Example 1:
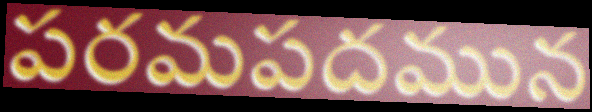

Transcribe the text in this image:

పరమపదమున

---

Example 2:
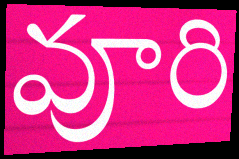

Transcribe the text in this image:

వూరి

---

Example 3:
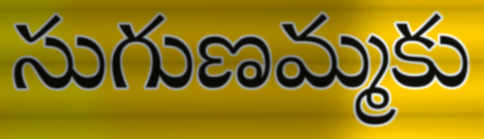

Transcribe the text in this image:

సుగుణమ్మకు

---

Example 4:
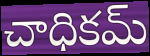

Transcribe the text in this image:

చాధికమ్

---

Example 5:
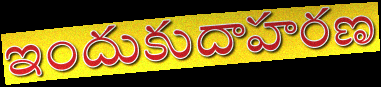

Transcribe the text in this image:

ఇందుకుదాహరణ